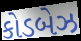
કોડબેઝ